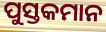
ପୁସ୍ତକମାନ